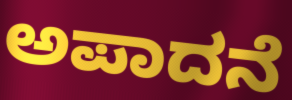
ಅಪಾದನೆ